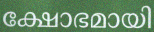
ക്ഷോഭമായി